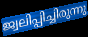
ജ്വലിപ്പിച്ചിരുന്നു